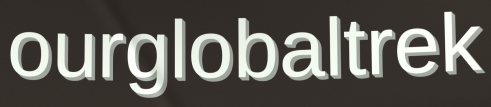
ourglobaltrek